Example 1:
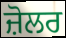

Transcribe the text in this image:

ਜ਼ੋਲਰ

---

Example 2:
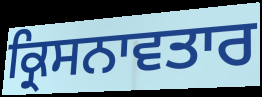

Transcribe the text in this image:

ਕ੍ਰਿਸਨਾਵਤਾਰ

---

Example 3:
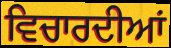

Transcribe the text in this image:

ਵਿਚਾਰਦੀਆਂ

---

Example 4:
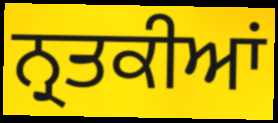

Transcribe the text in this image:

ਨ੍ਰਤਕੀਆਂ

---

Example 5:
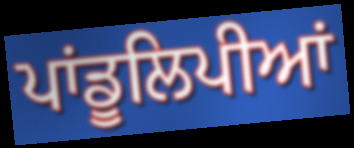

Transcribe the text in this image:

ਪਾਂਡੂਲਿਪੀਆਂ